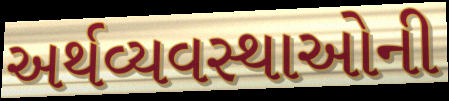
અર્થવ્યવસ્થાઓની